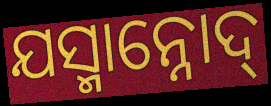
ଯସ୍ମାନ୍ନୋଦ୍